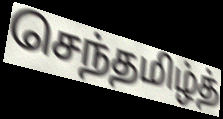
செந்தமிழ்த்